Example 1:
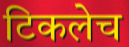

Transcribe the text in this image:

टिकलेच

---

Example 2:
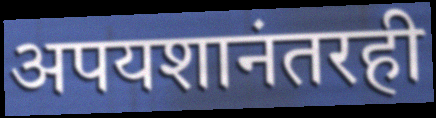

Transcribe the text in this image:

अपयशानंतरही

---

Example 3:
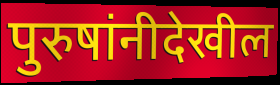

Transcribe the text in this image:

पुरुषांनीदेखील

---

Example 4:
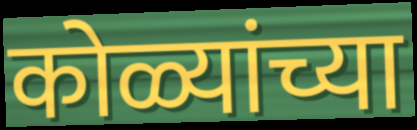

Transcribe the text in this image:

कोळ्यांच्या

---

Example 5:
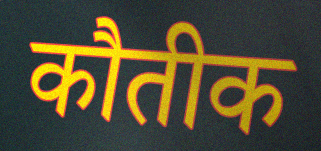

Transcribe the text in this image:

कौतीक